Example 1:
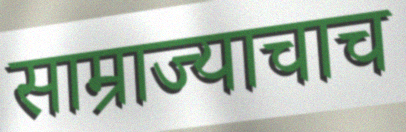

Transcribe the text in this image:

साम्राज्याचाच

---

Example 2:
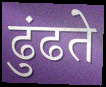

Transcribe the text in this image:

ढुंढते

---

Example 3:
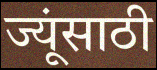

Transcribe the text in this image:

ज्यूंसाठी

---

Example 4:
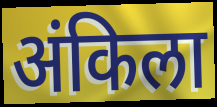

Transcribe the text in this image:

अंकिला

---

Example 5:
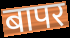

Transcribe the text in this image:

बापर